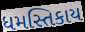
ધમસ્તિકાય